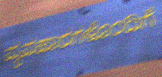
ವ್ಯವಹಾರಗಳೊಂದಿಗೆ